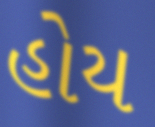
હોય